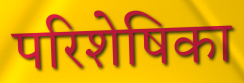
परिशेषिका